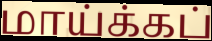
மாய்க்கப்